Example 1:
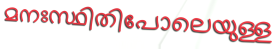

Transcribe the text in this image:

മനഃസ്ഥിതിപോലെയുള്ള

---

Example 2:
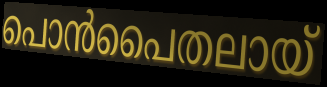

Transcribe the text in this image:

പൊൻപൈതലായ്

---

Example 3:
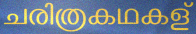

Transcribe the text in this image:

ചരിത്രകഥകള്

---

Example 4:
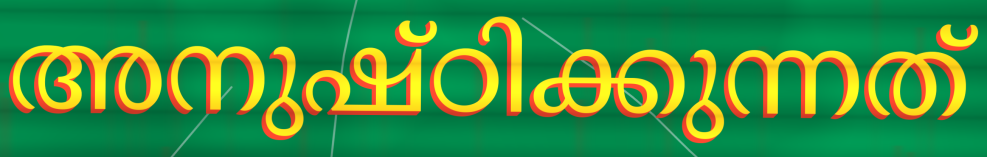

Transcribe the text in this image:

അനുഷ്ഠിക്കുന്നത്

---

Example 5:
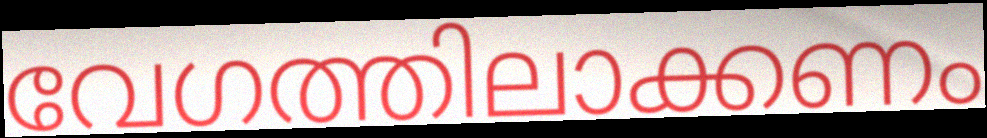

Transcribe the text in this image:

വേഗത്തിലാക്കണം